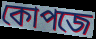
কোপজে